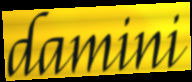
damini